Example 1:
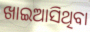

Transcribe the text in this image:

ଖାଇଆସିଥିବା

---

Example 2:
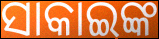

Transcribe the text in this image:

ସାକାଇଙ୍କ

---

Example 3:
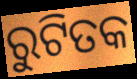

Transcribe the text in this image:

ରୁଟିତକ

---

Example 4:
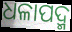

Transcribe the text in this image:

ଧଳାପଦ୍ମ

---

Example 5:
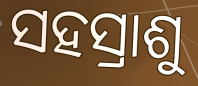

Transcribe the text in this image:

ସହସ୍ରାଶୁ